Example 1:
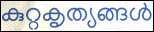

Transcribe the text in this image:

കുറ്റകൃത്യങ്ങൾ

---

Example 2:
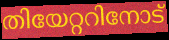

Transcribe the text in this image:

തിയേറ്ററിനോട്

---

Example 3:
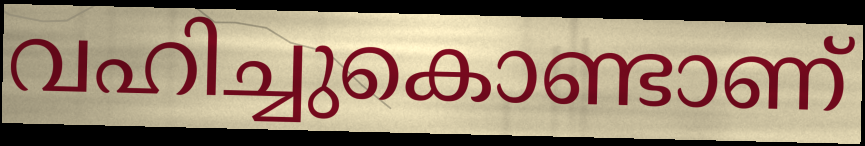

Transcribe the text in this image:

വഹിച്ചുകൊണ്ടാണ്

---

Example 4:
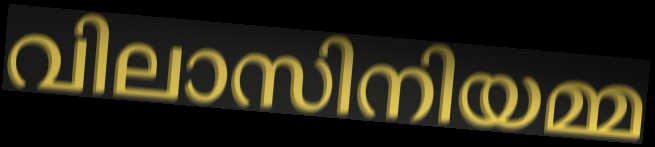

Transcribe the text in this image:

വിലാസിനിയമ്മ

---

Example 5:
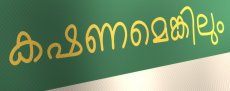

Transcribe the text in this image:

കഷണമെങ്കിലും